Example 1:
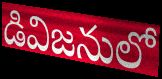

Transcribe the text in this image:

డివిజనులో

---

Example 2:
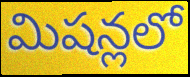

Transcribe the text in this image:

మిషన్లలో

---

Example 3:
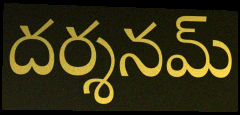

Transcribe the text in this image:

దర్శనమ్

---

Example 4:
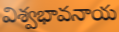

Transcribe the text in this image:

విశ్వభావనాయ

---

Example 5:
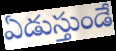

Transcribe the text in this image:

ఏడుస్తుండే